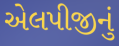
એલપીજીનું